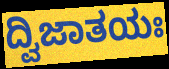
ದ್ವಿಜಾತಯಃ